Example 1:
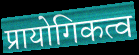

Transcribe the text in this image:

प्रायोगिकत्व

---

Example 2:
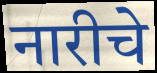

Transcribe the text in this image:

नारीचे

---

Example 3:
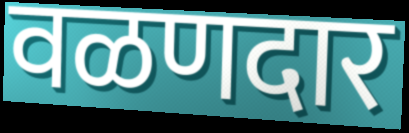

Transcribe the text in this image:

वळणदार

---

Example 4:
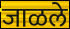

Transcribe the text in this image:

जाळले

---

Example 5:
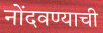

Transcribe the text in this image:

नोंदवण्याची